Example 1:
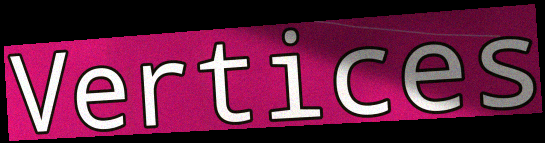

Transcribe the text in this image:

Vertices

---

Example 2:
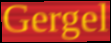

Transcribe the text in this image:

Gergel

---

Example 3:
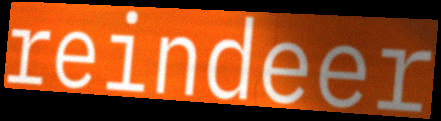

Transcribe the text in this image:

reindeer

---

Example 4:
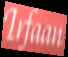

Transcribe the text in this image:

Irfaan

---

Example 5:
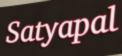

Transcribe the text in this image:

Satyapal